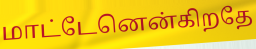
மாட்டேனென்கிறதே